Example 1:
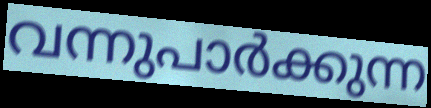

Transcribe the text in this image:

വന്നുപാർക്കുന്ന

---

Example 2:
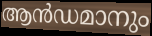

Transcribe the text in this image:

ആൻഡമാനും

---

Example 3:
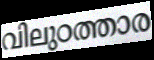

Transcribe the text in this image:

വിലുഠത്താര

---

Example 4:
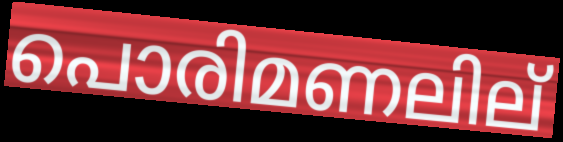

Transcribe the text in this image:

പൊരിമണലില്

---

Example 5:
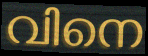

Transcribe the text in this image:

വിനെ